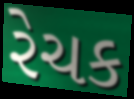
રેચક